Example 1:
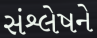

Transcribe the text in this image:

સંશ્લેષને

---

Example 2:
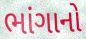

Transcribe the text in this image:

ભાંગાનો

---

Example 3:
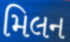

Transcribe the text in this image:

મિલન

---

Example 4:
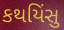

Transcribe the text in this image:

કથયિંસુ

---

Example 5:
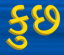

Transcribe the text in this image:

કુછ